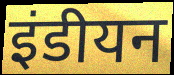
इंडीयन